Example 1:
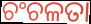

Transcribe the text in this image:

ଚଂଚଳତା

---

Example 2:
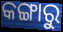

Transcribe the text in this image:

କଙ୍ଗାରୁ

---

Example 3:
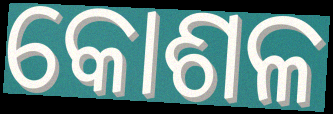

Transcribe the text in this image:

କୋଶଳ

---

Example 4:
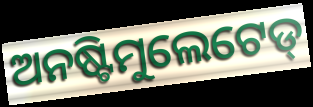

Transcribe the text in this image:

ଅନଷ୍ଟିମୁଲେଟେଡ୍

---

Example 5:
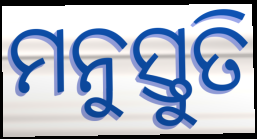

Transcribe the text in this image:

ମନୁସ୍ତୁତି